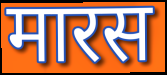
मारस